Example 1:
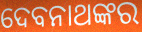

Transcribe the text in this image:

ଦେବନାଥଙ୍କର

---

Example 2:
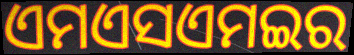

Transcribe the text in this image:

ଏମଏସଏମଇର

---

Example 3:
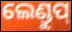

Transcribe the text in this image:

ଲେଣ୍ଡୁପ୍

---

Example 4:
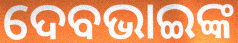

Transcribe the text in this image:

ଦେବଭାଇଙ୍କ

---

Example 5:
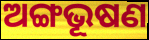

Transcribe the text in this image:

ଅଙ୍ଗଭୂଷଣ